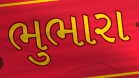
ભુભારા